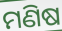
ମଣିଷ